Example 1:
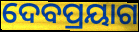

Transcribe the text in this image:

ଦେବପ୍ରୟାଗ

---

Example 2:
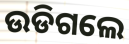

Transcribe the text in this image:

ଉଡିଗଲେ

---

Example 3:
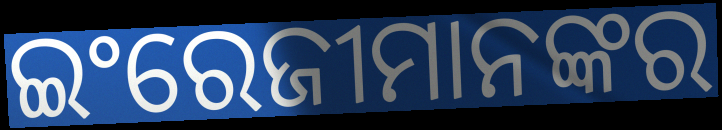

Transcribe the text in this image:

ଇଂରେଜୀମାନଙ୍କର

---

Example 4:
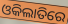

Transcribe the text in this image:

ଓକିଲାତିରେ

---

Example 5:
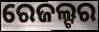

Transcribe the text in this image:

ରେଜଲ୍ଟର